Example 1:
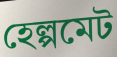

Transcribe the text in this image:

হেল্পমেট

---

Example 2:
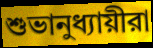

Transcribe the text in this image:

শুভানুধ্যায়ীরা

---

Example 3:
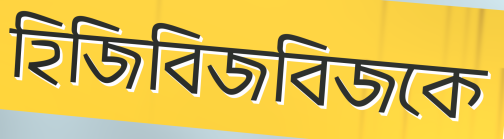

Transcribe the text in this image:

হিজিবিজবিজকে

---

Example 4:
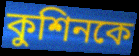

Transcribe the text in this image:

কুশিনকে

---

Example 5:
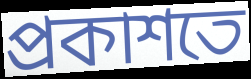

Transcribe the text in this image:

প্রকাশতে